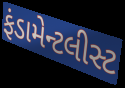
ફંડામેન્ટલીસ્ટ